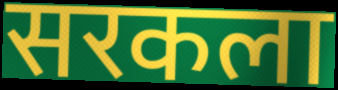
सरकला